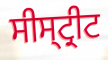
ਸੀਸ੍ਟ੍ਰੀਟ